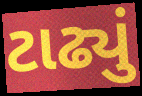
ટાઢ્યું